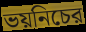
ভয়নিচের